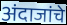
अंदाजांचे